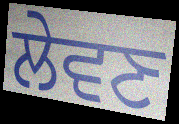
ਲੇਵਣ